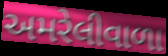
અમરેલીવાળા